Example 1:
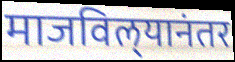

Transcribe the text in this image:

माजविल्यानंतर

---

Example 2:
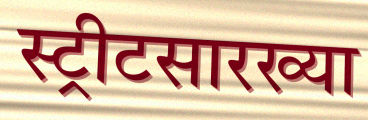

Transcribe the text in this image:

स्ट्रीटसारख्या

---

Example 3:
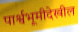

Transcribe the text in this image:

पार्श्वभूमीदेखील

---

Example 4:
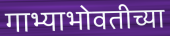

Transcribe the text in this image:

गाभ्याभोवतीच्या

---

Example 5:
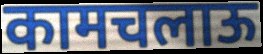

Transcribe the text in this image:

कामचलाऊ